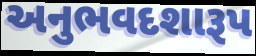
અનુભવદશારૂપ